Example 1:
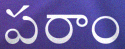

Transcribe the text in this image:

పరాం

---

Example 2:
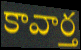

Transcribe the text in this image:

కావార్త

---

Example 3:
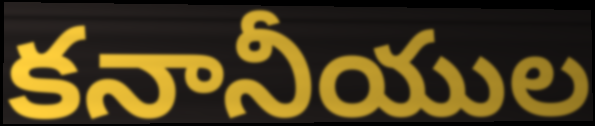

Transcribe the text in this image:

కనానీయుల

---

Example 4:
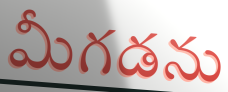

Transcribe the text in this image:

మీగడను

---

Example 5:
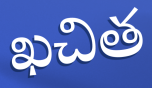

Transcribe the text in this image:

ఖచిత